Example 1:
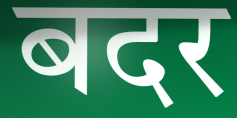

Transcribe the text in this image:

बदर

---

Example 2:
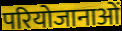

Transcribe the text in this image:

परियोजानाओं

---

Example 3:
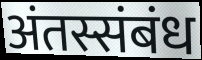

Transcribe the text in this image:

अंतस्संबंध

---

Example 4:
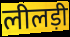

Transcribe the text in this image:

लीलड़ी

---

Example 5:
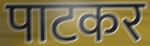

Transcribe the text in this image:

पाटकर